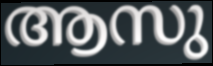
ആസു